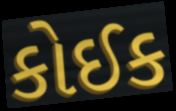
કોઈક